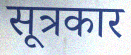
सूत्रकार